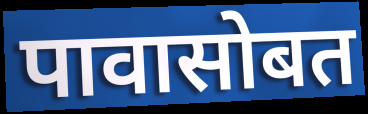
पावासोबत